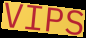
VIPS